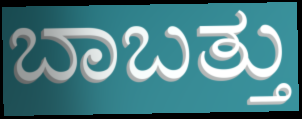
ಬಾಬತ್ತು